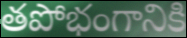
తపోభంగానికి